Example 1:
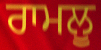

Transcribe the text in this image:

ਰਾਮਲੂ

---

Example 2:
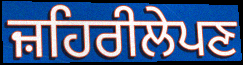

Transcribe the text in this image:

ਜ਼ਹਿਰੀਲੇਪਣ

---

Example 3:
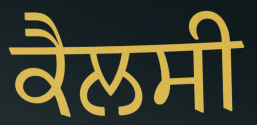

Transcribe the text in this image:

ਕੈਲਸੀ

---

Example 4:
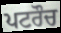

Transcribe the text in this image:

ਪਟਰੌਚ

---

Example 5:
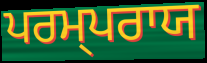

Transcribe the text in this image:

ਪਰਮ੍ਪਰਾਯ